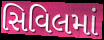
સિવિલમાં